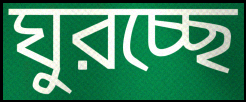
ঘুরচ্ছে